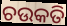
ଚଉକତି